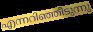
എന്നറിഞ്ഞീടുന്നു